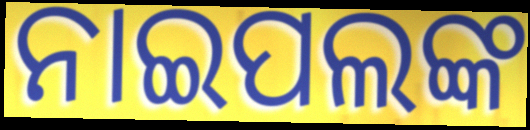
ନାଇପଲଙ୍କ